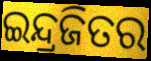
ଇନ୍ଦ୍ରଜିତର